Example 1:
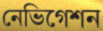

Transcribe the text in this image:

নেভিগেশন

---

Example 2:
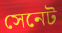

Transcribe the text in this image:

সেনেট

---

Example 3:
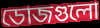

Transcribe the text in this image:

ডোজগুলো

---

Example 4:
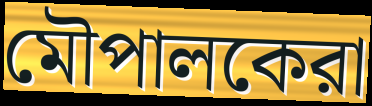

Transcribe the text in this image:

মৌপালকেরা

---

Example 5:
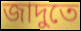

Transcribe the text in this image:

জাদুতে